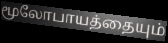
மூலோபாயத்தையும்